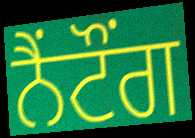
ਨੈਂਟੌਂਗ